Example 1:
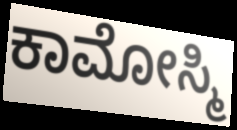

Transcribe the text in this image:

ಕಾಮೋಸ್ಮಿ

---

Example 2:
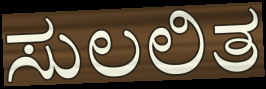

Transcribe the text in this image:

ಸುಲಲಿತ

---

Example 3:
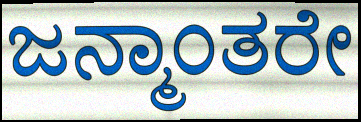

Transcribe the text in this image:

ಜನ್ಮಾಂತರೇ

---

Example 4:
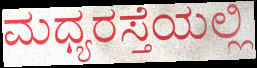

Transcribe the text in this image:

ಮಧ್ಯರಸ್ತೆಯಲ್ಲಿ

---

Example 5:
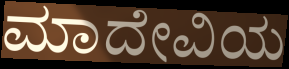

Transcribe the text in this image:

ಮಾದೇವಿಯ